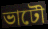
ভাটৌ